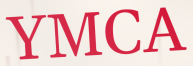
YMCA